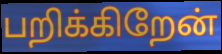
பறிக்கிறேன்